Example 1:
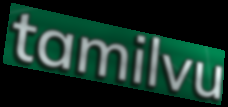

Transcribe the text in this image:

tamilvu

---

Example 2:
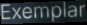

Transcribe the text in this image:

Exemplar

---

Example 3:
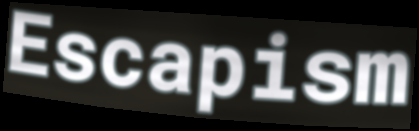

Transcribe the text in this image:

Escapism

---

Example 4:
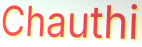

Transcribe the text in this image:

Chauthi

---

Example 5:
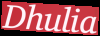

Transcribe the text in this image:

Dhulia